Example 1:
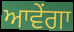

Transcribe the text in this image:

ਆਵੇਂਗਾ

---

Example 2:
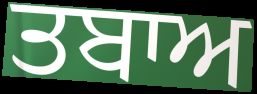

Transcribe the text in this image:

ਤਬਾਅ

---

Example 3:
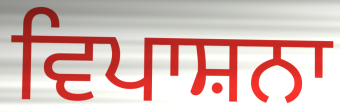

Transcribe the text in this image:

ਵਿਪਾਸ਼ਨਾ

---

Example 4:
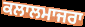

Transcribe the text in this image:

ਕਲਾਲਮਾਜਰਾ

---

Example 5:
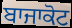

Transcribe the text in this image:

ਬਾਜਾਕੋਟ